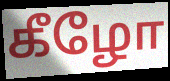
கீழோ